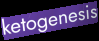
ketogenesis